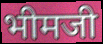
भीमजी